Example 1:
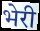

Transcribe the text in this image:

भेरी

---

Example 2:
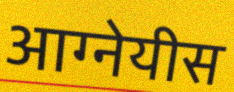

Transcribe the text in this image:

आग्नेयीस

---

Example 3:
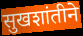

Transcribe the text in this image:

सुखशांतीने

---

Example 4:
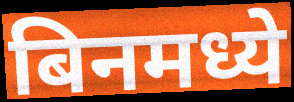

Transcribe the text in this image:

बिनमध्ये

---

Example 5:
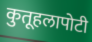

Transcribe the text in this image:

कुतूहलापोटी